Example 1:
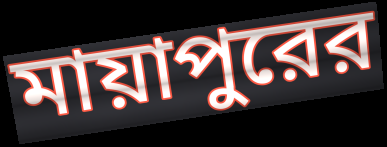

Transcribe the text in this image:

মায়াপুরের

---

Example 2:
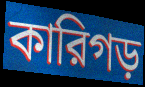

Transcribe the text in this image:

কারিগড়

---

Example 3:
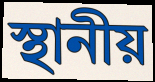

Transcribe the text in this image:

স্থানীয়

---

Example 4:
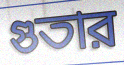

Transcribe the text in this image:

গুতার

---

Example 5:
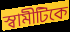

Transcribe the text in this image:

স্বামীটিকে